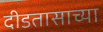
दीडतासाच्या